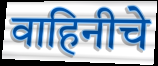
वाहिनीचे